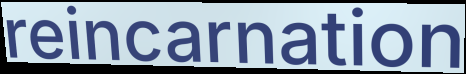
reincarnation